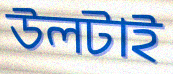
উলটাই